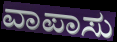
ವಾಪಾಸು